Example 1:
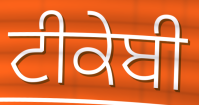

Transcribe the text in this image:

ਟੀਕੇਬੀ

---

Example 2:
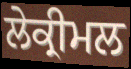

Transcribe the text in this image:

ਲੇਕ੍ਰੀਮਲ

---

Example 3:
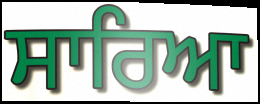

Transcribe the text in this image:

ਸਾਰਿਆ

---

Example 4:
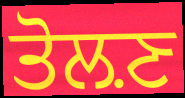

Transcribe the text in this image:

ਤੋਲ਼ਣ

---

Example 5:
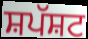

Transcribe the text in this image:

ਸ਼ਪੱਸ਼ਟ